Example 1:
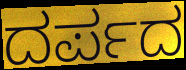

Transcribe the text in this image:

ದರ್ಪದ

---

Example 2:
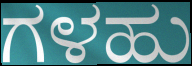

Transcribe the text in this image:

ಗಳಹು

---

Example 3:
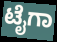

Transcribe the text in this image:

ಟೈಗಾ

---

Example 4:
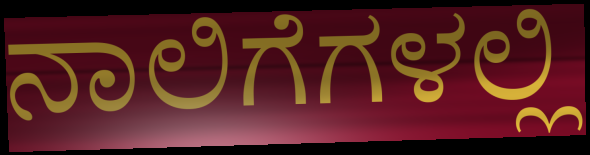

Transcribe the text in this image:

ನಾಲಿಗೆಗಳಲ್ಲಿ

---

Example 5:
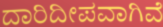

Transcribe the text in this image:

ದಾರಿದೀಪವಾಗಿವೆ